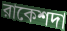
রাকেশদা